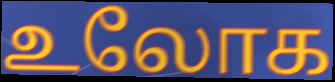
உலோக